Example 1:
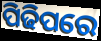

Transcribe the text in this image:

ପିଢିପରେ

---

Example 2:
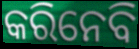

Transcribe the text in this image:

କରିନେବି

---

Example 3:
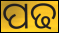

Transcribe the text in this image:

ପଢ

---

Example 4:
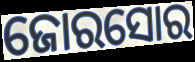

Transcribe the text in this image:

ଜୋରସୋର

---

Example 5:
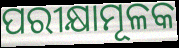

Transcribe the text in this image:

ପରୀକ୍ଷାମୂଳକ